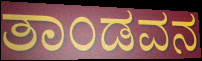
ತಾಂಡವನ